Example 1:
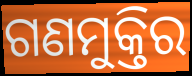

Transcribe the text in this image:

ଗଣମୁକ୍ତିର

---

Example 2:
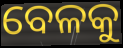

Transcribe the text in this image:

ବେଳକୁ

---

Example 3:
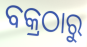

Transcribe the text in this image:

ବକ୍ରଠାରୁ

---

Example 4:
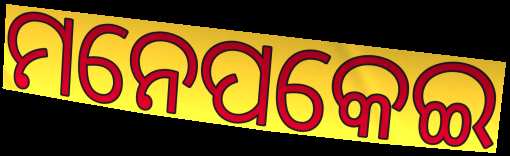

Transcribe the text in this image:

ମନେପକେଇ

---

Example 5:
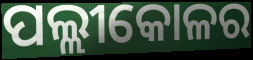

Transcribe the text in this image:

ପଲ୍ଲୀକୋଳର